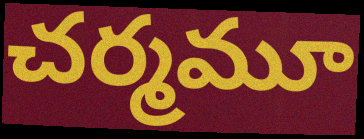
చర్మమూ